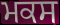
ਮਕਸ